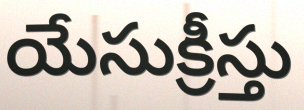
యేసుక్రీస్తు